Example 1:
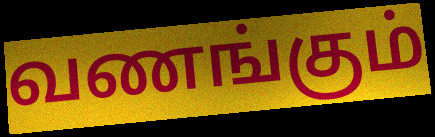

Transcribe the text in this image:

வணங்கும்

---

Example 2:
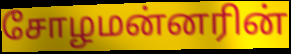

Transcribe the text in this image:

சோழமன்னரின்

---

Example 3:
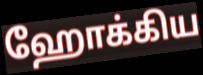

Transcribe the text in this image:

ஹோக்கிய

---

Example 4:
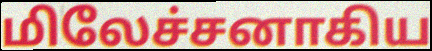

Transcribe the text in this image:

மிலேச்சனாகிய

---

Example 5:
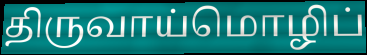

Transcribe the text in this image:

திருவாய்மொழிப்